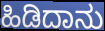
ಹಿಡಿದಾನು